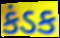
કંડક